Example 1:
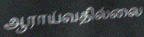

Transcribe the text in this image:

ஆராய்வதில்லை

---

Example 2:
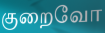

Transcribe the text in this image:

குறைவோ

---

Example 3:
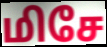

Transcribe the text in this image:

மிசே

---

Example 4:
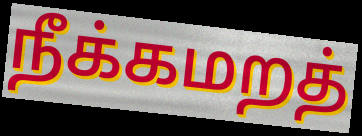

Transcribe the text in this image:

நீக்கமறத்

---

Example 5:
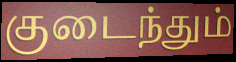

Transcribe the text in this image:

குடைந்தும்